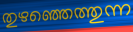
തുഴഞ്ഞെത്തുന്ന